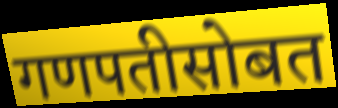
गणपतीसोबत